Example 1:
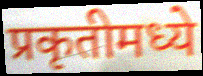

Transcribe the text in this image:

प्रकृतीमध्ये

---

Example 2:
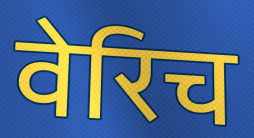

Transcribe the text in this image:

वेरिच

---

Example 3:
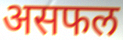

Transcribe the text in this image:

असफल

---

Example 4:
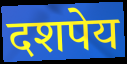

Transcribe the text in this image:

दशपेय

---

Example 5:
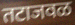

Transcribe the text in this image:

तटाजवळ